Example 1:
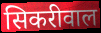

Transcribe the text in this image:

सिकरीवाल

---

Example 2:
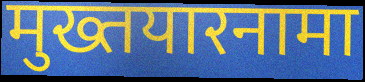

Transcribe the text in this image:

मुख्तयारनामा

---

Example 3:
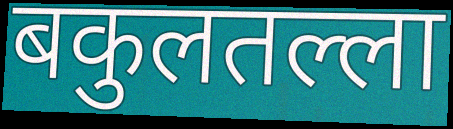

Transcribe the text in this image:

बकुलतल्ला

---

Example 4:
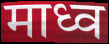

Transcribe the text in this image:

माध्व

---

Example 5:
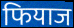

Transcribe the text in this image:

फियाज